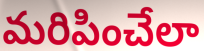
మరిపించేలా